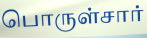
பொருள்சார்